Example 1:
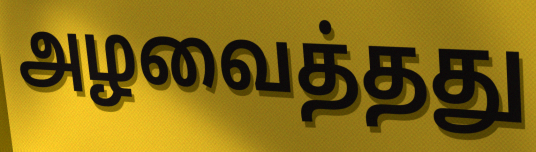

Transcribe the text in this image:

அழவைத்தது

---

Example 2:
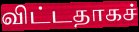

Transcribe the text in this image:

விட்டதாகச்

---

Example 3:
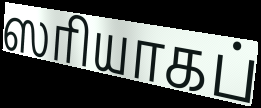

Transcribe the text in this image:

ஸரியாகப்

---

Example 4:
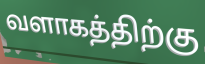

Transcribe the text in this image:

வளாகத்திற்கு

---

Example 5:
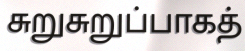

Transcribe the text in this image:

சுறுசுறுப்பாகத்